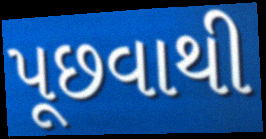
પૂછવાથી